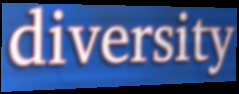
diversity